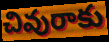
చివురాకు